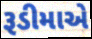
રૂડીમાએ